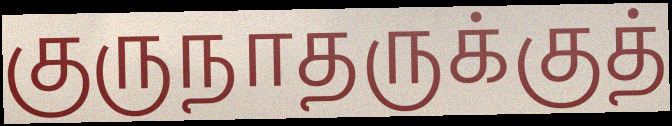
குருநாதருக்குத்